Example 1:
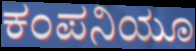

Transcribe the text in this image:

ಕಂಪನಿಯೂ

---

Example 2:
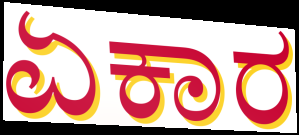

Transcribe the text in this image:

ಏಕಾರ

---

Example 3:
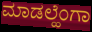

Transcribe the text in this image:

ಮಾಡಲ್ಹೆಂಗಾ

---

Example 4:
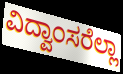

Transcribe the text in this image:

ವಿದ್ವಾಂಸರೆಲ್ಲಾ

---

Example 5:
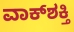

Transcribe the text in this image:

ವಾಕ್‌ಶಕ್ತಿ